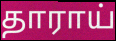
தாராய்